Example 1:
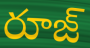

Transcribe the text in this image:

రూజ్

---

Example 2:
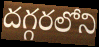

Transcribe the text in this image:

దగ్గరలోని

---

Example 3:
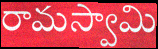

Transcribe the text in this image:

రామస్వామి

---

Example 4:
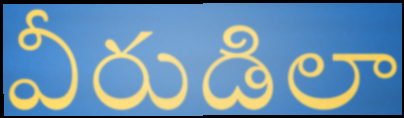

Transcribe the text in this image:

వీరుడిలా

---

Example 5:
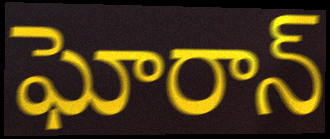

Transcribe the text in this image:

ఘోరాన్